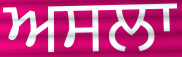
ਅਸਲਾ